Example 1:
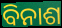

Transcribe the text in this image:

ବିନାଶ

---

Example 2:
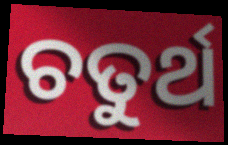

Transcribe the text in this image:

ଚତୁର୍ଥ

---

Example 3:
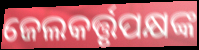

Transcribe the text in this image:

ଜେଲକର୍ତ୍ତୃପକ୍ଷଙ୍କ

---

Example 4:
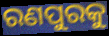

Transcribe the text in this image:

ରଣପୁରକୁ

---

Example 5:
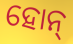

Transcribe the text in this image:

ହୋନ୍